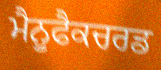
ਮੈਨੂਫੈਕਚਰਡ